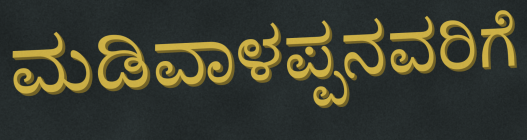
ಮಡಿವಾಳಪ್ಪನವರಿಗೆ